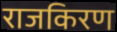
राजकिरण